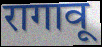
रागावू